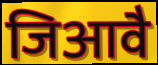
जिआवै